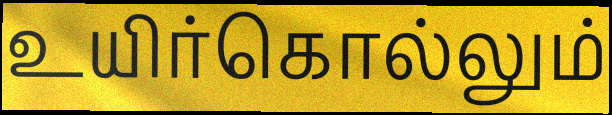
உயிர்கொல்லும்